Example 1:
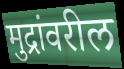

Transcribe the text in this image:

मुद्रांवरील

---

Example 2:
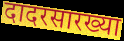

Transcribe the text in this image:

दादरसारख्या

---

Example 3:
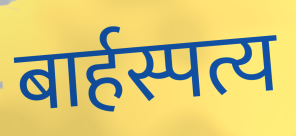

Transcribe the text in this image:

बार्हस्पत्य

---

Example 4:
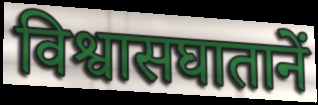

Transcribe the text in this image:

विश्वासघातानें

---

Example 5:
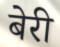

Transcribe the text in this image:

बेरी